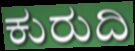
ಕುರುದಿ